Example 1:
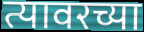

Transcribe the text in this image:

त्यावरच्या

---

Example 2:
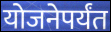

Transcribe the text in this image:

योजनेपर्यंत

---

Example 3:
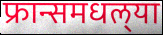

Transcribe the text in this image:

फ्रान्समधल्या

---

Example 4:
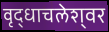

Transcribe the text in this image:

वृद्धाचलेश्वर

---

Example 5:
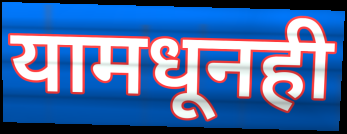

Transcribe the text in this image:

यामधूनही